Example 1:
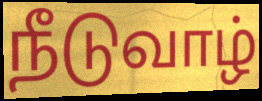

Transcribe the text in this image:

நீடுவாழ்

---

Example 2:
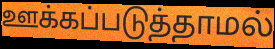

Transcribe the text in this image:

ஊக்கப்படுத்தாமல்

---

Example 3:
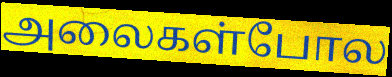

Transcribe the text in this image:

அலைகள்போல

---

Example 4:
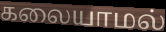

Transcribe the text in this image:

கலையாமல்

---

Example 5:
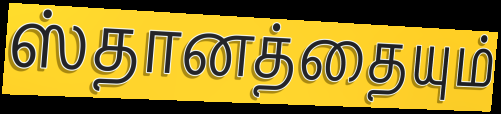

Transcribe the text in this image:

ஸ்தானத்தையும்